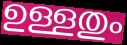
ഉള്ളതും